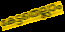
കേട്ടതെല്ലാം